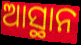
ଆସ୍ଥାନ